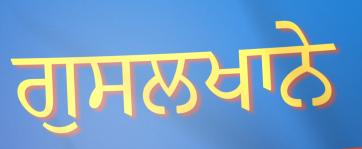
ਗੁਸਲਖਾਨੇ